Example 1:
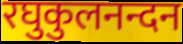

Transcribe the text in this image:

रघुकुलनन्दन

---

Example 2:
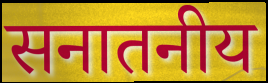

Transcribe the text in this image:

सनातनीय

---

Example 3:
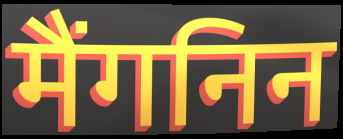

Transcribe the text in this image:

मैंगनिन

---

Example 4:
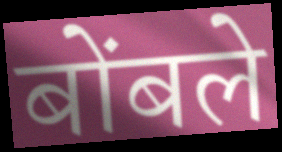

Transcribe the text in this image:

बोंबले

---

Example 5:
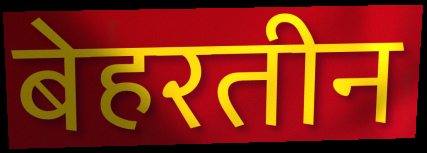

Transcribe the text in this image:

बेहरतीन